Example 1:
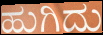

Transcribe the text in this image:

ಹುಗಿದು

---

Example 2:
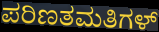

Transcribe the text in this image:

ಪರಿಣತಮತಿಗಳ್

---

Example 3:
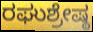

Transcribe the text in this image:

ರಘುಶ್ರೇಷ್ಠ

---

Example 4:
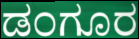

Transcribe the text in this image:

ಡಂಗೂರ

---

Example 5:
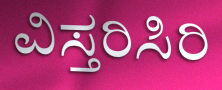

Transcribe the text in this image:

ವಿಸ್ತರಿಸಿರಿ